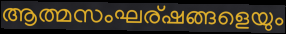
ആത്മസംഘര്ഷങ്ങളെയും